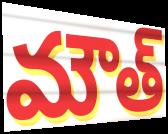
మౌత్